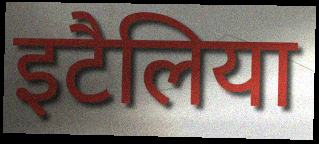
इटैलिया